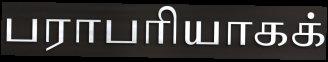
பராபரியாகக்